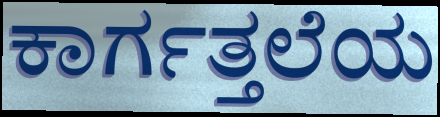
ಕಾರ್ಗತ್ತಲೆಯ